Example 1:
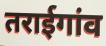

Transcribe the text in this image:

तराईगांव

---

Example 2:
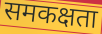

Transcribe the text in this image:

समकक्षता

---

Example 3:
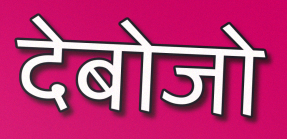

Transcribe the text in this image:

देबोजो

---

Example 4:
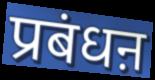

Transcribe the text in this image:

प्रबंधऩ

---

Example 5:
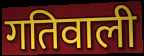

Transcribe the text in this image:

गतिवाली